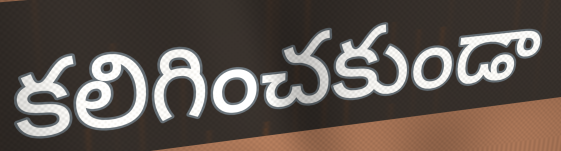
కలిగించకుండా